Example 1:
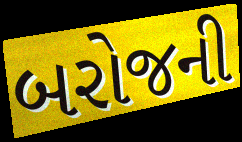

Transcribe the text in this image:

બરોજની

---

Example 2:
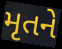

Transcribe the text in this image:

મૃતને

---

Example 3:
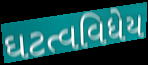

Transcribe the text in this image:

ઘટત્વવિધેય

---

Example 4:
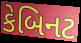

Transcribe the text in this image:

કેબિનટ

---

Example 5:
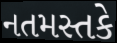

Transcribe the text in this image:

નતમસ્તકે